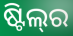
ଷ୍ଟିଲ୍‌ର